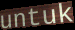
untuk